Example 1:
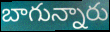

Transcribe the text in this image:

బాగున్నారు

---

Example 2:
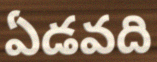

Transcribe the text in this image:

ఏడవది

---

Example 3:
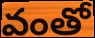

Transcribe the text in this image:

వంతో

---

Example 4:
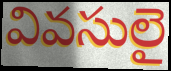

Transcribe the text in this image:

వివసులై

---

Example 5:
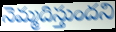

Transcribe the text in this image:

నెమ్మదిస్తుందని